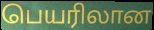
பெயரிலான